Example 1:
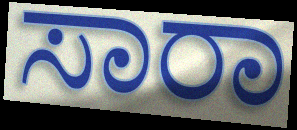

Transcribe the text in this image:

ಸಾರಾ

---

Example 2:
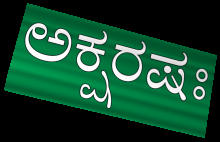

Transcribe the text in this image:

ಅಕ್ಷರಷಃ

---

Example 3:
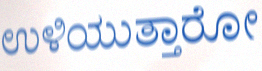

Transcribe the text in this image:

ಉಳಿಯುತ್ತಾರೋ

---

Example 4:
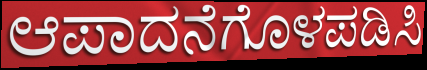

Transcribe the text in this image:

ಆಪಾದನೆಗೊಳಪಡಿಸಿ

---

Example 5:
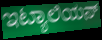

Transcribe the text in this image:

ಇಟ್ಯಾಲಿಯನ್